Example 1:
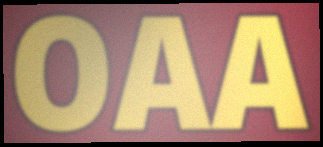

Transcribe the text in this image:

OAA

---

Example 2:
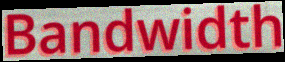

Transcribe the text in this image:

Bandwidth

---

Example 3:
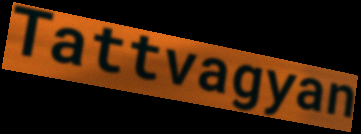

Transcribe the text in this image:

Tattvagyan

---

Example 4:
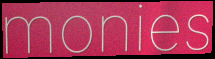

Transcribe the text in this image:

monies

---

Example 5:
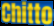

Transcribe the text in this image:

Chitto